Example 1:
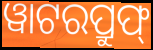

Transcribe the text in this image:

ୱାଟରପ୍ରୁଫ୍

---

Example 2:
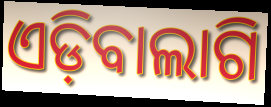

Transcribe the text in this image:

ଏଡ଼ିବାଲାଗି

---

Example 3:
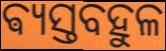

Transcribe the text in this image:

ଵ୍ୟସ୍ତବହୁଳ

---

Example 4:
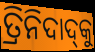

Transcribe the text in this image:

ତ୍ରିନିଦାଦ୍‍କୁ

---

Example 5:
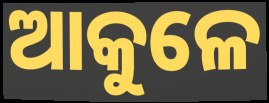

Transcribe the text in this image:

ଆକୁଳେ